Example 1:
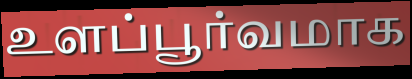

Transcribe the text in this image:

உளப்பூர்வமாக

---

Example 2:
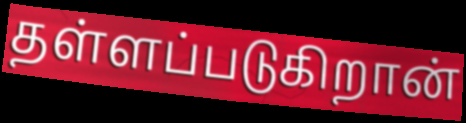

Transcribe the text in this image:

தள்ளப்படுகிறான்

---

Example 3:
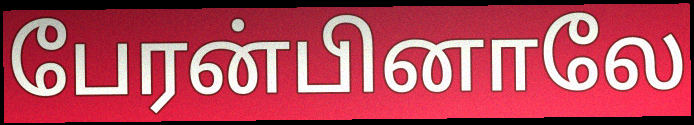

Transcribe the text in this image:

பேரன்பினாலே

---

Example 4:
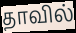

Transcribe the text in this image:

தாவில்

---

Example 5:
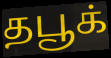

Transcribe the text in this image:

தபூக்